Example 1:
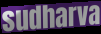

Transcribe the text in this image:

sudharva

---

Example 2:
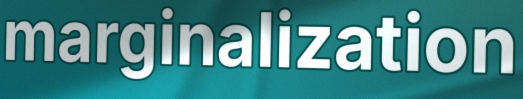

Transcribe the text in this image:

marginalization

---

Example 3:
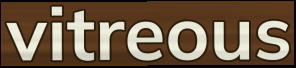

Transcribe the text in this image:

vitreous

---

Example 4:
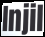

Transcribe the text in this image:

Injil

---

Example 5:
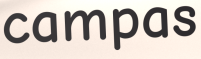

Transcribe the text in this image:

campas